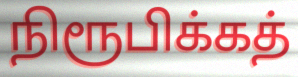
நிரூபிக்கத்